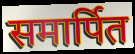
समार्पित